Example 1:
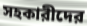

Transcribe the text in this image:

সহকারীদের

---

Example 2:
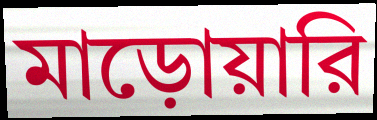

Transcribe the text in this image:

মাড়োয়ারি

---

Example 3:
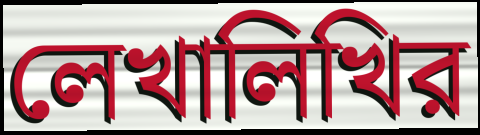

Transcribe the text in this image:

লেখালিখির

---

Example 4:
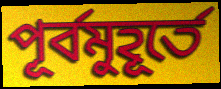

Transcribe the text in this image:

পূর্বমুহূর্তে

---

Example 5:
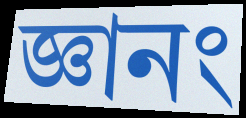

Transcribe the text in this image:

জ্ঞানং